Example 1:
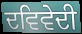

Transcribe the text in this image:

ਦਵਿਵੇਦੀ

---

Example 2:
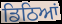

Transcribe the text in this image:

ਡਿਠਿਆਂ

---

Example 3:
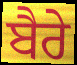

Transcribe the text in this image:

ਬੈਰੇ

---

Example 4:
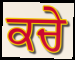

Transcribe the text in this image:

ਕਚੇ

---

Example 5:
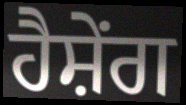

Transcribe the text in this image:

ਹੈਸ਼ੇਂਗ